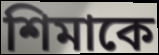
শিমাকে